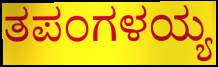
ತಪಂಗಳಯ್ಯ